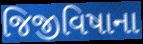
જિજીવિષાના